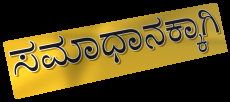
ಸಮಾಧಾನಕ್ಕಾಗಿ